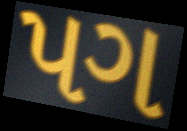
પગ